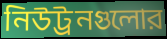
নিউট্রনগুলোর